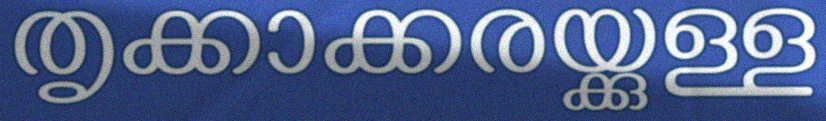
തൃക്കാക്കരയ്ക്കുള്ള